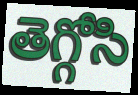
తెగ్గోసి